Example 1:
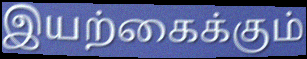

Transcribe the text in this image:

இயற்கைக்கும்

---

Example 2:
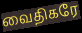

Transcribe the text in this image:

வைதிகரே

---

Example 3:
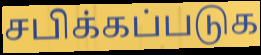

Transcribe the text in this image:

சபிக்கப்படுக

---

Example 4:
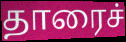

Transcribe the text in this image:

தாரைச்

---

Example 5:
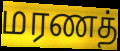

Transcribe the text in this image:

மரணத்